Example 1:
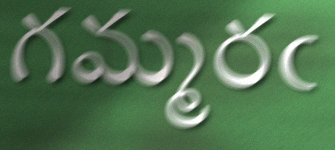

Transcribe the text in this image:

గమ్మరఁ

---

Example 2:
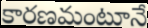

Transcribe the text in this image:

కారణమంటూనే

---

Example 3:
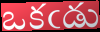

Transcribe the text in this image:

ఒకఁడు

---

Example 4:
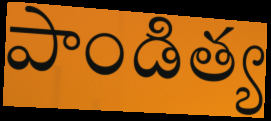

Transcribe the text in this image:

పాండిత్య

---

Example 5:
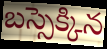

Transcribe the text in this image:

బస్సెక్కిన